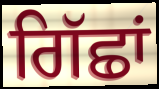
ਗਿੱਛਾਂ